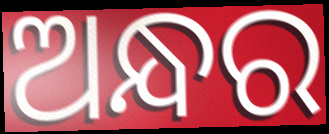
ଅନ୍ଧର